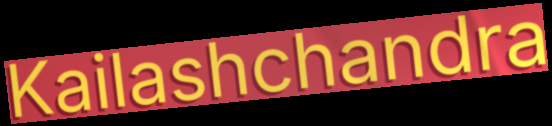
Kailashchandra